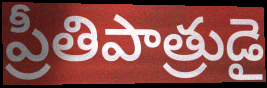
ప్రీతిపాత్రుడై